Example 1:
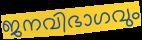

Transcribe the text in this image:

ജനവിഭാഗവും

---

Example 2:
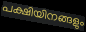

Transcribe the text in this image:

പക്ഷിയിനങ്ങളും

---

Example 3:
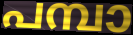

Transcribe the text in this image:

പമ്പാ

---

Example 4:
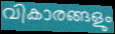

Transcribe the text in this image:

വികാരങ്ങളും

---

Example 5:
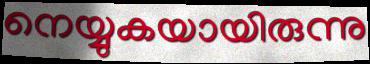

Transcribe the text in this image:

നെയ്യുകയായിരുന്നു